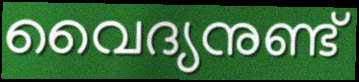
വൈദ്യനുണ്ട്